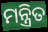
ମନ୍ତ୍ରିତ